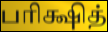
பரிக்ஷித்